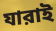
যারাই